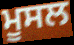
ਮੂਸਲ